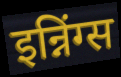
इन्निंग्स